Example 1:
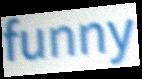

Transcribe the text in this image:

funny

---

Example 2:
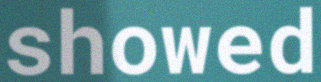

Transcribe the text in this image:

showed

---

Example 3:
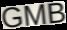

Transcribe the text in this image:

GMB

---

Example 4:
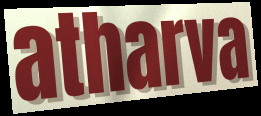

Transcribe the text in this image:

atharva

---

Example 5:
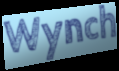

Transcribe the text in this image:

Wynch